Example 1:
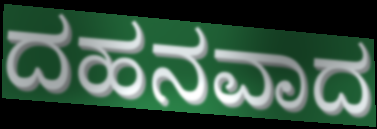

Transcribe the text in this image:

ದಹನವಾದ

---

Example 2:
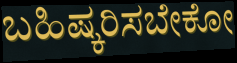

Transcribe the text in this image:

ಬಹಿಷ್ಕರಿಸಬೇಕೋ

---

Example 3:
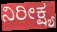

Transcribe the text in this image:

ನಿರೀಕ್ಷ್ಯ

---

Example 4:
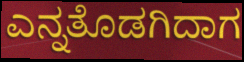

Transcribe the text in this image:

ಎನ್ನತೊಡಗಿದಾಗ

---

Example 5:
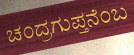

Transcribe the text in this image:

ಚಂದ್ರಗುಪ್ತನೆಂಬ